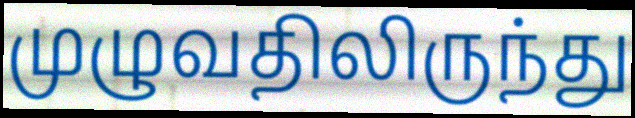
முழுவதிலிருந்து